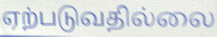
ஏற்படுவதில்லை